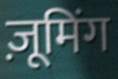
ज़ूमिंग